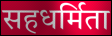
सहधर्मिता